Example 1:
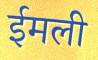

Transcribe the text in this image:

ईमली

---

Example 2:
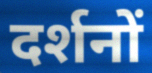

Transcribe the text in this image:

दर्शनों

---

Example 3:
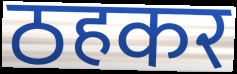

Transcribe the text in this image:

ठहकर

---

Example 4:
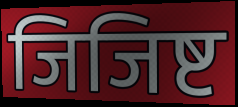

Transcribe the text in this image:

जिजिष्ट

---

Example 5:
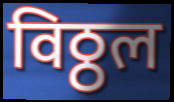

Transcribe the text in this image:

विठ्ठल